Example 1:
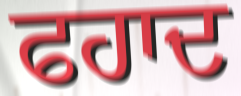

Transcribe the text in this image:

ਫਹਾਦ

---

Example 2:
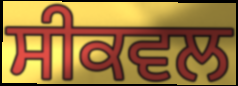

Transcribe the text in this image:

ਸੀਕਵਲ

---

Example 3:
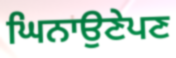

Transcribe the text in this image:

ਘਿਨਾਉਣੇਪਣ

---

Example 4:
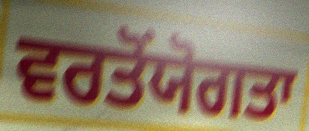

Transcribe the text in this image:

ਵਰਤੋਂਯੋਗਤਾ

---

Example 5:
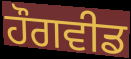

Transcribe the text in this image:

ਹੌਗਵੀਡ